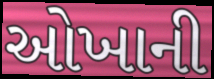
ઓખાની